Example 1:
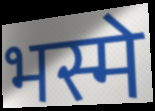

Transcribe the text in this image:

भस्मे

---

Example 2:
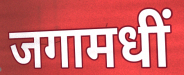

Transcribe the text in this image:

जगामधीं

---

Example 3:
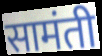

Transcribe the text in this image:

सामंती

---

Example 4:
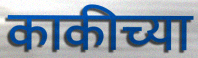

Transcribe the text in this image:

काकीच्या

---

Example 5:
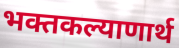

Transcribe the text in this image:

भक्तकल्याणार्थ